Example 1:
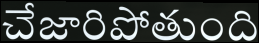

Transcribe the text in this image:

చేజారిపోతుంది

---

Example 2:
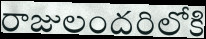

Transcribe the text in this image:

రాజులందరిలోకి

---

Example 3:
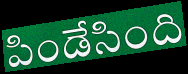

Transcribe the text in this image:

పిండేసింది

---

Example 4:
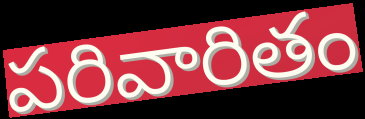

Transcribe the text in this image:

పరివారితం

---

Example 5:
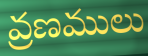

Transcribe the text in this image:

వ్రణములు